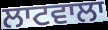
ਲਾਟਵਾਲਾ